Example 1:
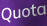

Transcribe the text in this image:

Quota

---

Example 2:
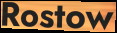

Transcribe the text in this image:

Rostow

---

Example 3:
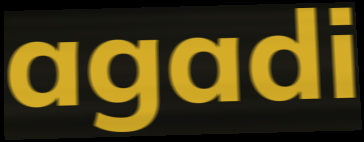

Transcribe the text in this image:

agadi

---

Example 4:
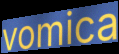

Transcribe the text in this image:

vomica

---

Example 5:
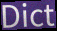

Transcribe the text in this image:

Dict